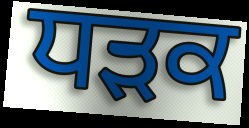
ਧੜਕ